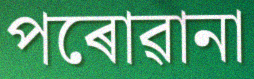
পৰোৱানা